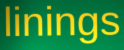
linings